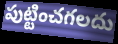
పుట్టించగలదు